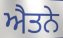
ਐਤਨੇ